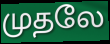
முதலே